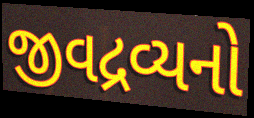
જીવદ્રવ્યનો